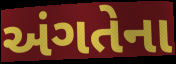
અંગતેના